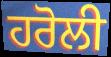
ਹਰੋਲੀ